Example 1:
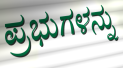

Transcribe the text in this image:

ಪ್ರಭುಗಳನ್ನು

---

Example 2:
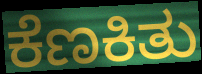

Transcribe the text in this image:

ಕೆಣಕಿತು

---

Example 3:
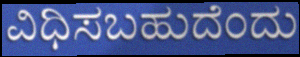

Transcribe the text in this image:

ವಿಧಿಸಬಹುದೆಂದು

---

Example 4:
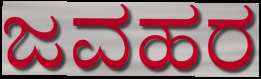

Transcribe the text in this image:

ಜವಹರ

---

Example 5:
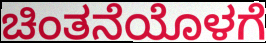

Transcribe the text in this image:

ಚಿಂತನೆಯೊಳಗೆ